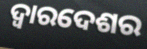
ଦ୍ୱାରଦେଶର